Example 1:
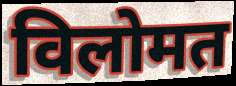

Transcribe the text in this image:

विलोमत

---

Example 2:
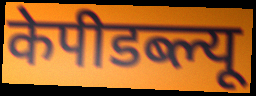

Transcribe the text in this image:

केपीडब्ल्यू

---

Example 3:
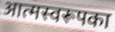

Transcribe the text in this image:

आत्मस्वरूपका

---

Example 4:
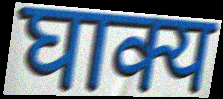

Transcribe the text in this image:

घाक्य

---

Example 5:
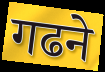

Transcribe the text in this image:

गढने